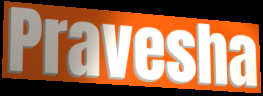
Pravesha